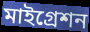
মাইগ্রেশন